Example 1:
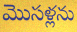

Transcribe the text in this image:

మొసళ్లను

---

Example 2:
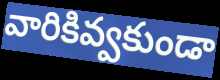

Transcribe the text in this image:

వారికివ్వకుండా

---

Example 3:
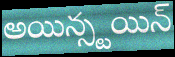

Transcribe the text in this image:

అయిన్స్టయిన్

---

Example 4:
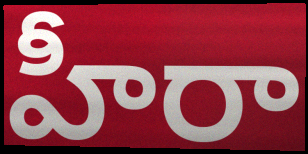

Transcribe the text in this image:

హీరా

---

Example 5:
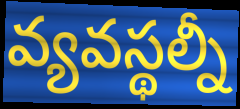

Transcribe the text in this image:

వ్యవస్థల్నీ